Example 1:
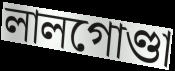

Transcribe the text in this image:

লালগোণ্ডা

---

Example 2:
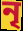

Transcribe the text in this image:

নৃ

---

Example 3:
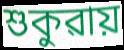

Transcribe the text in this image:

শুকুৱায়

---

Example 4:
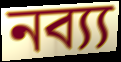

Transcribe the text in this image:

নব্য্য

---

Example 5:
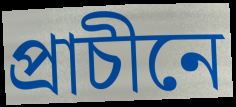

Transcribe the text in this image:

প্ৰাচীনে